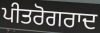
ਪੀਤਰੋਗਰਾਦ